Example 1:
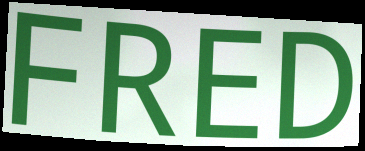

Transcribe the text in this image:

FRED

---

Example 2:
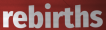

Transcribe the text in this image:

rebirths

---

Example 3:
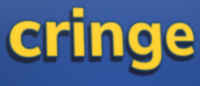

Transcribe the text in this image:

cringe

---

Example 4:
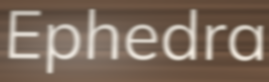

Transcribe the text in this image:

Ephedra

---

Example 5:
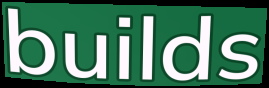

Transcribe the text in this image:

builds